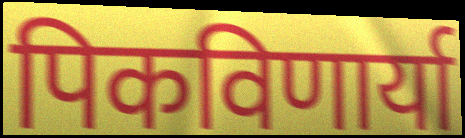
पिकविणार्या